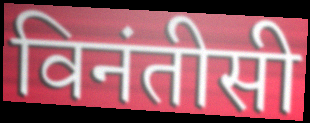
विनंतीसी